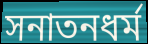
সনাতনধর্ম